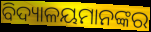
ବିଦ୍ୟାଳୟମାନଙ୍କର